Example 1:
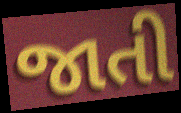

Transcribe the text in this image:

જાતી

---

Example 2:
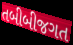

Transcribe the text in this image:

તબીબીજગત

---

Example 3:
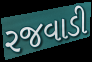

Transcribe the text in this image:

રજવાડી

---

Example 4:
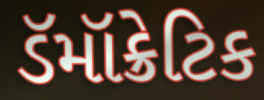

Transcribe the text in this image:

ડૅમૉક્રેટિક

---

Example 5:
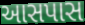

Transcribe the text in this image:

આસપાસ